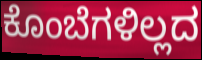
ಕೊಂಬೆಗಳಿಲ್ಲದ